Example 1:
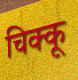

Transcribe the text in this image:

चिक्कू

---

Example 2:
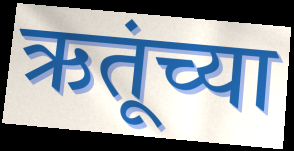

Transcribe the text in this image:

ऋतूंच्या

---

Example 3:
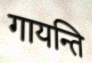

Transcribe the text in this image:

गायन्ति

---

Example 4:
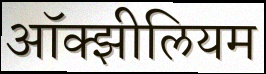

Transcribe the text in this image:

ऑक्झीलियम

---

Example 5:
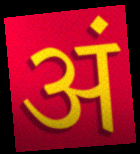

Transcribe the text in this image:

अं